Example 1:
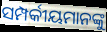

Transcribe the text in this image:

ସମ୍ପର୍କୀୟମାନଙ୍କୁ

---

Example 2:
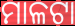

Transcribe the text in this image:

ମାଳଟା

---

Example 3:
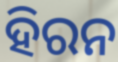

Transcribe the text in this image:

ହିରନ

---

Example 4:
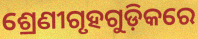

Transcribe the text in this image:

ଶ୍ରେଣୀଗୃହଗୁଡ଼ିକରେ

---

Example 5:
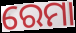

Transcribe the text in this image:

ରେମା